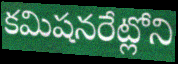
కమిషనరేట్లోని